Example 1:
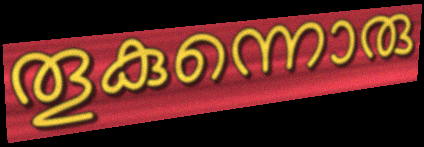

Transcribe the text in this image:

തൂകുന്നൊരു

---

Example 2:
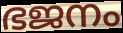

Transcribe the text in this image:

ഭജനം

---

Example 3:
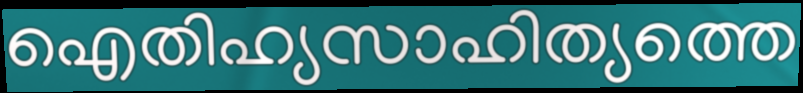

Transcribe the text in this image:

ഐതിഹ്യസാഹിത്യത്തെ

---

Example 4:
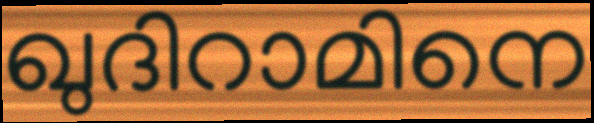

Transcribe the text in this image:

ഖുദിറാമിനെ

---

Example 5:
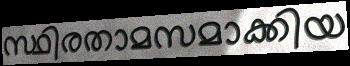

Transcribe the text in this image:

സ്ഥിരതാമസമാക്കിയ